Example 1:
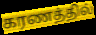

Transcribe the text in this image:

கரணத்தில்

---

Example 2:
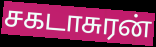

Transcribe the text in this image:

சகடாசுரன்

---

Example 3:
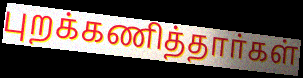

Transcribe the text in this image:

புறக்கணித்தார்கள்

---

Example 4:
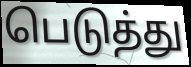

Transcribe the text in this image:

பெடுத்து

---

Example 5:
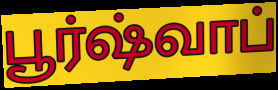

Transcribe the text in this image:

பூர்ஷ்வாப்